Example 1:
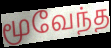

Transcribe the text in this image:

மூவேந்த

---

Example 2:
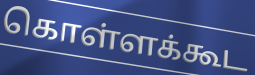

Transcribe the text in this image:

கொள்ளக்கூட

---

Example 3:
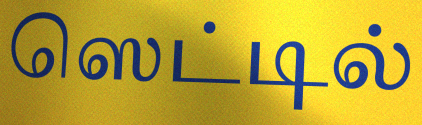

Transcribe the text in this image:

ஸெட்டில்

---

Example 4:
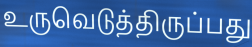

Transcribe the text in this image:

உருவெடுத்திருப்பது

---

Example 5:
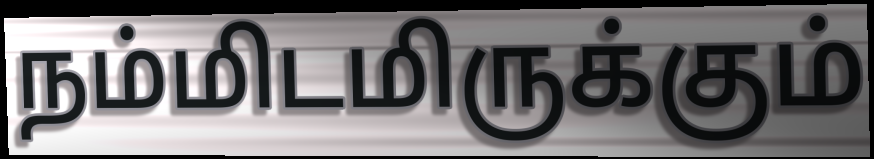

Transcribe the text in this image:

நம்மிடமிருக்கும்